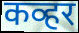
कव्हर